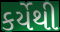
કર્યેથી